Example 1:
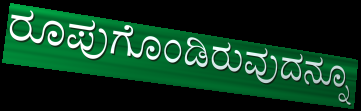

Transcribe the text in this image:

ರೂಪುಗೊಂಡಿರುವುದನ್ನೂ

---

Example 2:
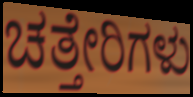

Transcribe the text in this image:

ಚತ್ತೇರಿಗಳು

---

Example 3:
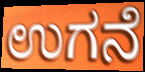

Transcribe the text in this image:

ಉಗನೆ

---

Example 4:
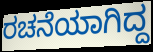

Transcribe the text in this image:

ರಚನೆಯಾಗಿದ್ದ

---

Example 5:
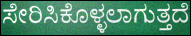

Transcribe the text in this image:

ಸೇರಿಸಿಕೊಳ್ಳಲಾಗುತ್ತದೆ